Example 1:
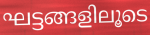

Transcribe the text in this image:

ഘട്ടങ്ങളിലൂടെ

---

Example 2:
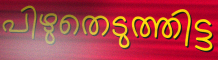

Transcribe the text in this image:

പിഴുതെടുത്തിട്ട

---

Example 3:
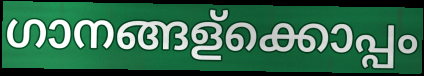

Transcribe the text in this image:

ഗാനങ്ങള്ക്കൊപ്പം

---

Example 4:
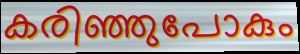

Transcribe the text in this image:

കരിഞ്ഞുപോകും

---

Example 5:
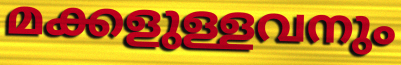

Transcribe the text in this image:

മക്കളുള്ളവനും